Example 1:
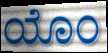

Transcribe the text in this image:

ಯೊಂ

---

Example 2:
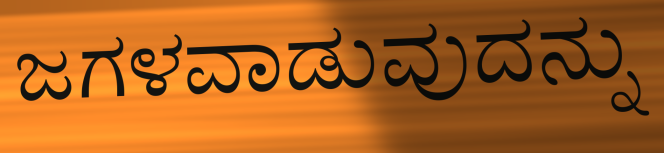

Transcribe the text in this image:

ಜಗಳವಾಡುವುದನ್ನು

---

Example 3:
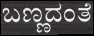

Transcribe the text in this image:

ಬಣ್ಣದಂತೆ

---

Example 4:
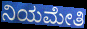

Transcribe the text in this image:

ನಿಯಮೇತಿ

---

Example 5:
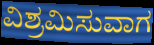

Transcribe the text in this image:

ವಿಶ್ರಮಿಸುವಾಗ